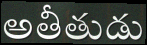
అతీతుడు